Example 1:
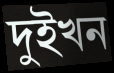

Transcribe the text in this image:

দুইখন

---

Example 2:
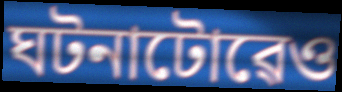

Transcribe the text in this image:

ঘটনাটোৱেও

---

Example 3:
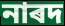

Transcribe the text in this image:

নাৰদ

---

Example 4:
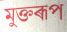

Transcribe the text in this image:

মুক্তৰূপ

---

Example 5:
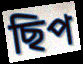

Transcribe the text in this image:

ছিপ